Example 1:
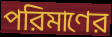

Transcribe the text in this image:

পরিমাণের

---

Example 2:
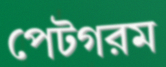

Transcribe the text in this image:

পেটগরম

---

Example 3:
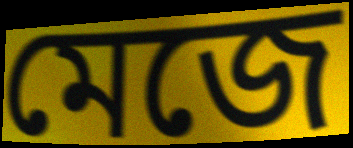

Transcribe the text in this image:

মেজে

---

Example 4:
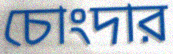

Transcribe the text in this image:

চোংদার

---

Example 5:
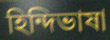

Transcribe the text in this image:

হিন্দিভাষা